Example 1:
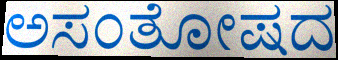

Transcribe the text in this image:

ಅಸಂತೋಷದ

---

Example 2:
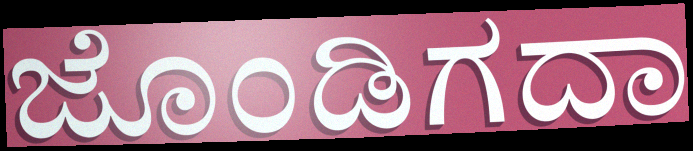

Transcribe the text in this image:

ಜೊಂಡಿಗದಾ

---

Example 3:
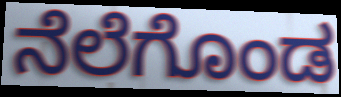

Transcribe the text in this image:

ನೆಲೆಗೊಂಡ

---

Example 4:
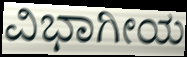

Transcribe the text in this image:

ವಿಭಾಗೀಯ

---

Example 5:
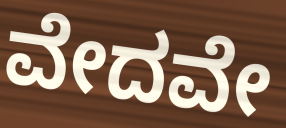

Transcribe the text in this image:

ವೇದವೇ